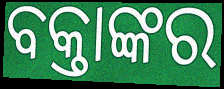
ବକ୍ତାଙ୍କର